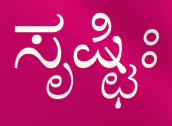
ಸೃಷ್ಟಿಃ